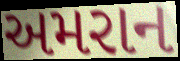
અમરાન